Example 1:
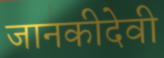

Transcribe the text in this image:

जानकीदेवी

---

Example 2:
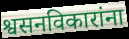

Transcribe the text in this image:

श्वसनविकारांना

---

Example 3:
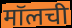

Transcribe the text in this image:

मॉलची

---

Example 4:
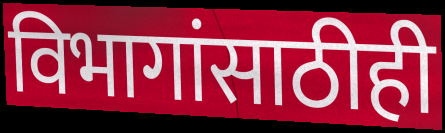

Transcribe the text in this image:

विभागांसाठीही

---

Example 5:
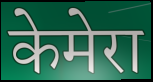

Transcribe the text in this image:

केमेरा